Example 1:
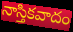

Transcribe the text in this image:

నాస్తికవాదం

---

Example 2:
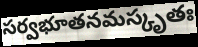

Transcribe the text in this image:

సర్వభూతనమస్కృతః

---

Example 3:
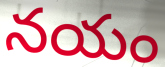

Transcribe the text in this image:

నయం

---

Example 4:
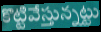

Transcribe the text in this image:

కొట్టివేస్తున్నట్టు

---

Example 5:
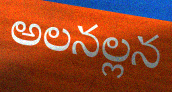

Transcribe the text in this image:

అలనల్లన